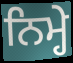
ਨਿਮ੍ਹੇ